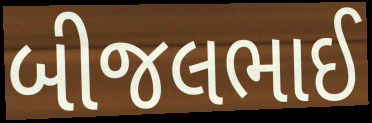
બીજલભાઈ